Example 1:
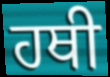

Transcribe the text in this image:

ਹਥੀ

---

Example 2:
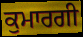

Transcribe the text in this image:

ਕੁਮਾਰਗੀ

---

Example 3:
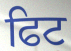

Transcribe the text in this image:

ਫਿਟ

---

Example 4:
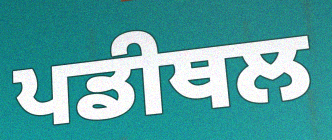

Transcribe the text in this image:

ਪਡੀਥਲ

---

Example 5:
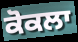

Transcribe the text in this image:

ਕੋਕਲਾ